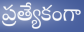
ప్రత్యేకంగా